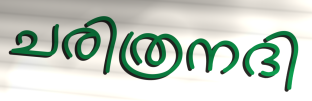
ചരിത്രനദി